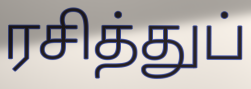
ரசித்துப்